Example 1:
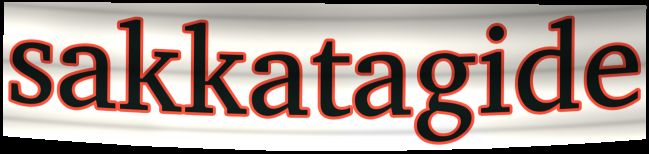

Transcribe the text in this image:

sakkatagide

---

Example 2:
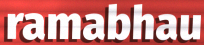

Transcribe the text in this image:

ramabhau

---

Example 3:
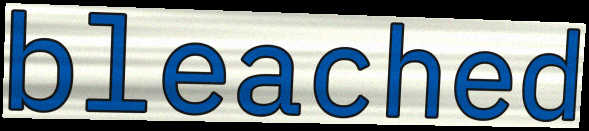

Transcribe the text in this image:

bleached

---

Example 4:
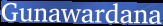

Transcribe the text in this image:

Gunawardana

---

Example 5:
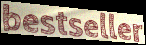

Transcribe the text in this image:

bestseller